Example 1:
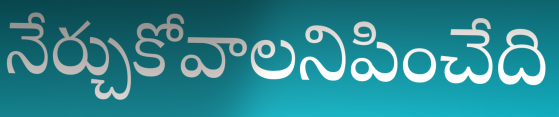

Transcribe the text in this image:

నేర్చుకోవాలనిపించేది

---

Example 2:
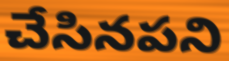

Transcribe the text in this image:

చేసినపని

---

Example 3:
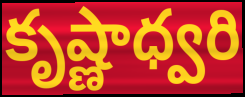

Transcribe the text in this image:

కృష్ణాధ్వరి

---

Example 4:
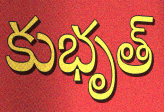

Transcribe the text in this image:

కుభృత్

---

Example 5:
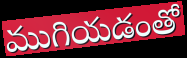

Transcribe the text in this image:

ముగియడంతో